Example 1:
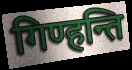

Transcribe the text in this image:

गिण्हन्ति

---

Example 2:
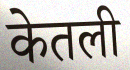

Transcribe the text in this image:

केतली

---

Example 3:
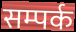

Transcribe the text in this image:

सम्‍पर्क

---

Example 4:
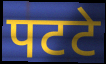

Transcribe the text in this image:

पटटे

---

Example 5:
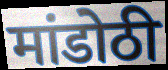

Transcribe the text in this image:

मांडोठी